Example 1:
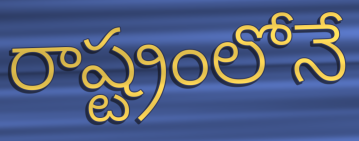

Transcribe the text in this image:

రాష్ట్రంలోనే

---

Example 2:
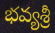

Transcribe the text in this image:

భవ్యశ్రీ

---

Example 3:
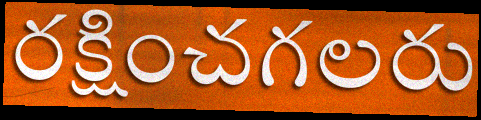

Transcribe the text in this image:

రక్షించగలరు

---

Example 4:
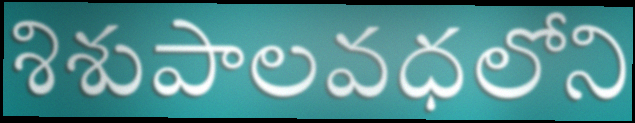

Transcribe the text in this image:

శిశుపాలవధలోని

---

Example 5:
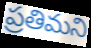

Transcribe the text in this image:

ప్రతిమని